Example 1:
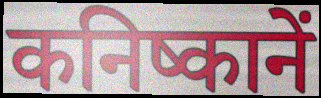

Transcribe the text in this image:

कनिष्कानें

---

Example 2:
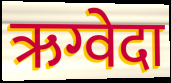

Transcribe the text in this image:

ऋग्वेदा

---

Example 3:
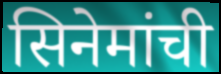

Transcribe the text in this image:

सिनेमांची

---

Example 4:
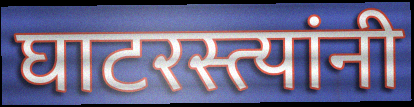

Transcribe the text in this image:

घाटरस्त्यांनी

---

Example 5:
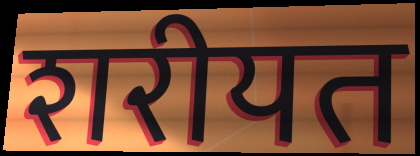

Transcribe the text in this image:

शरीयत